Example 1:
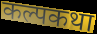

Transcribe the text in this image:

कल्पकथा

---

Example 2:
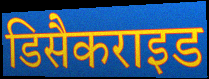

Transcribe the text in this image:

डिसैकराइड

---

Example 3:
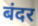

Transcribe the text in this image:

बंदर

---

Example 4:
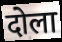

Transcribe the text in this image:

दोला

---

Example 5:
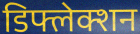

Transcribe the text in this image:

डिफ्लेक्शन